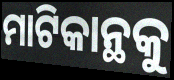
ମାଟିକାନ୍ଥକୁ